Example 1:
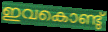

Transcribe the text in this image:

ഇവകൊണ്ടു്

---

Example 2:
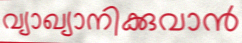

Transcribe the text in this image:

വ്യാഖ്യാനിക്കുവാൻ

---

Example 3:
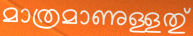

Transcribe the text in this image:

മാത്രമാണുള്ളതു്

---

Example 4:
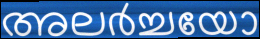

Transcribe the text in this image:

അലർച്ചയോ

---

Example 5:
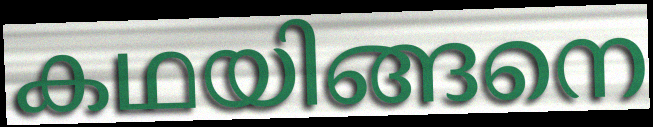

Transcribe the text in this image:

കഥയിങ്ങനെ